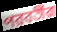
পরবর্তীরা